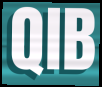
QIB